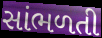
સાંભળતી